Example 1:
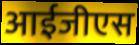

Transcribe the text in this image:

आईजीएस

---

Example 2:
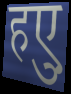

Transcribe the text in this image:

हएु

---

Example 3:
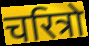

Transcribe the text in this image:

चरित्रो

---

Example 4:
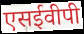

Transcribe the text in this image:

एसईवीपी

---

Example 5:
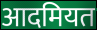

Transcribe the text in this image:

आदमियत